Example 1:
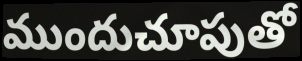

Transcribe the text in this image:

ముందుచూపుతో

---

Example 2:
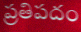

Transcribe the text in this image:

ప్రతిపదం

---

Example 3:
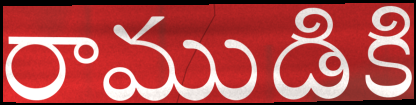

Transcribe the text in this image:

రాముడికి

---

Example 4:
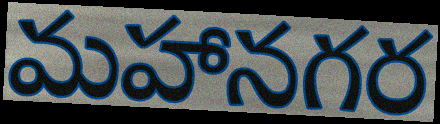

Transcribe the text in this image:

మహానగర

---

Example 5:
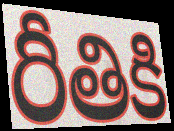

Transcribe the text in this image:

రీతికి